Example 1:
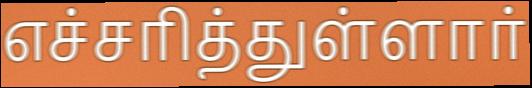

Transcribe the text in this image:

எச்சரித்துள்ளார்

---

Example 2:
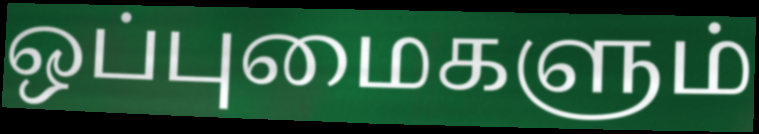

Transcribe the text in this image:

ஒப்புமைகளும்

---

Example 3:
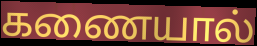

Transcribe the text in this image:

கணையால்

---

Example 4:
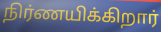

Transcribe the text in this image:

நிர்ணயிக்கிறார்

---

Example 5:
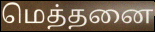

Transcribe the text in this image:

மெத்தனை